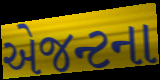
એજન્ટના